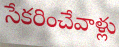
సేకరించేవాళ్లు